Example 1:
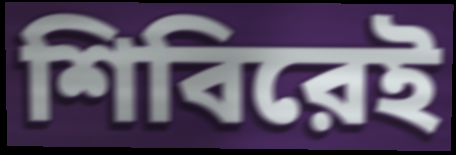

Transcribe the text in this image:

শিবিরেই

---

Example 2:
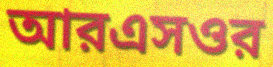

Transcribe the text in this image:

আরএসওর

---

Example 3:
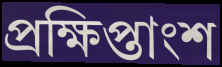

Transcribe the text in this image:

প্রক্ষিপ্তাংশ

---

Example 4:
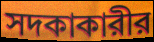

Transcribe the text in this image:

সদকাকারীর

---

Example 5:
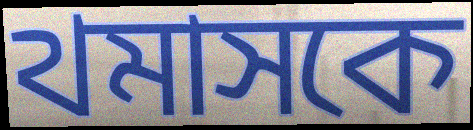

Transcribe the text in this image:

থমাসকে